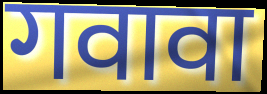
गवावा